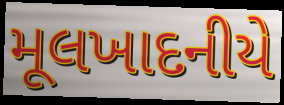
મૂલખાદનીયે